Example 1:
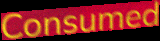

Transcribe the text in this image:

Consumed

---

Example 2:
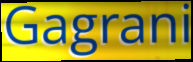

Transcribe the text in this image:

Gagrani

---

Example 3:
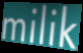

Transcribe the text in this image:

milik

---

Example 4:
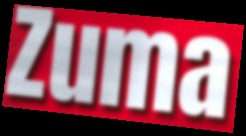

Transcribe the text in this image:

Zuma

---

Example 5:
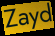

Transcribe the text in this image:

Zayd